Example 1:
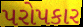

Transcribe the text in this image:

પરોપકાર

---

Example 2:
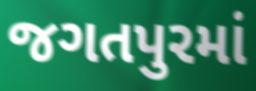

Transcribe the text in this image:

જગતપુરમાં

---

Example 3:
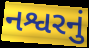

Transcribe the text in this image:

નશ્વરનું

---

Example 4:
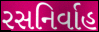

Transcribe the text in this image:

રસનિર્વાહ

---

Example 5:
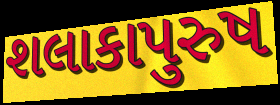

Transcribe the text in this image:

શલાકાપુરુષ